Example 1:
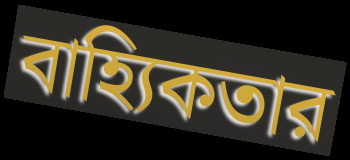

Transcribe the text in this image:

বাহ্যিকতার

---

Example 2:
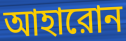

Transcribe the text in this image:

আহারোন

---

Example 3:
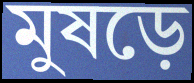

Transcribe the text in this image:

মুষড়ে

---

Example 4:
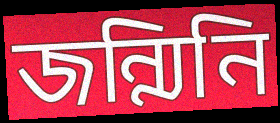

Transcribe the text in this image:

জন্মিনি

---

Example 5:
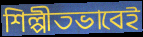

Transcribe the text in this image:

শিল্পীতভাবেই